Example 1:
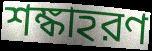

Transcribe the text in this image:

শঙ্কাহরণ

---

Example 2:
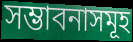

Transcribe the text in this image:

সম্ভাবনাসমূহ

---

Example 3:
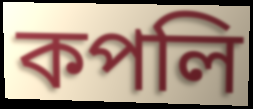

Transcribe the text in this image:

কপলি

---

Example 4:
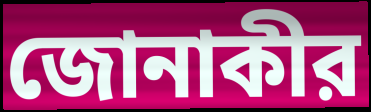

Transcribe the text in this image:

জোনাকীর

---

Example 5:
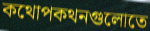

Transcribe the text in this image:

কথোপকথনগুলোতে